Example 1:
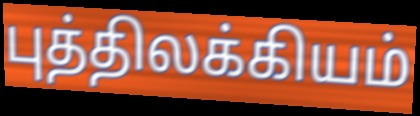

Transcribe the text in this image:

புத்திலக்கியம்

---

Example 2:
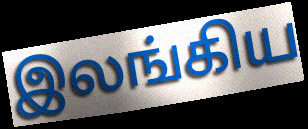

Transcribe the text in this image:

இலங்கிய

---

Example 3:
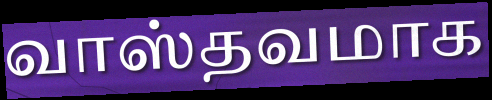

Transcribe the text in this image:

வாஸ்தவமாக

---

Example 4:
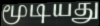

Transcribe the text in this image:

மூடியது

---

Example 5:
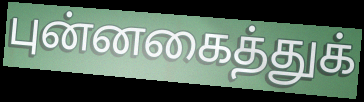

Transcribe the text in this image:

புன்னகைத்துக்